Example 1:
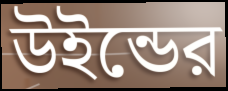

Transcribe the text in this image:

উইন্ডের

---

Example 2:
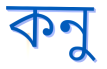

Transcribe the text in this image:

কনু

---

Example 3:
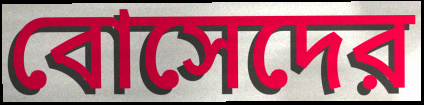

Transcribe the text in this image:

বোসেদের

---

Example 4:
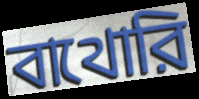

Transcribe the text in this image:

বাথোরি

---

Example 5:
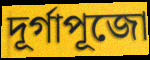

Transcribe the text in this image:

দূর্গাপূজো